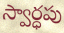
స్వార్ధపు